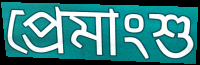
প্রেমাংশু